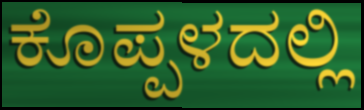
ಕೊಪ್ಪಳದಲ್ಲಿ